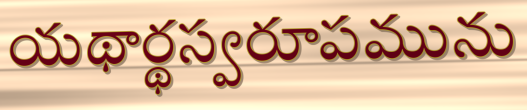
యథార్థస్వరూపమును